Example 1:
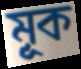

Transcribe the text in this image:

মূক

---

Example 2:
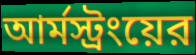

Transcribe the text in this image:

আর্মস্ট্রংয়ের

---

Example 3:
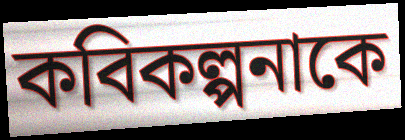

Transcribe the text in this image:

কবিকল্পনাকে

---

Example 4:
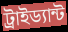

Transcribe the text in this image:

ট্রাইড্যান্ট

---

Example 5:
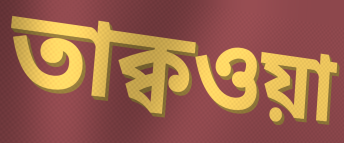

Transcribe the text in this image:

তাক্বওয়া